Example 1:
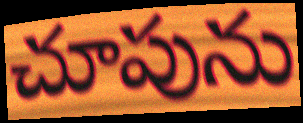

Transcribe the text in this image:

చూపును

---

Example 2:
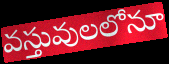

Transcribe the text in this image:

వస్తువులలోనూ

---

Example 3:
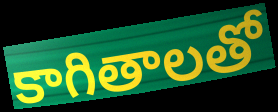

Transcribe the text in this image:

కాగితాలతో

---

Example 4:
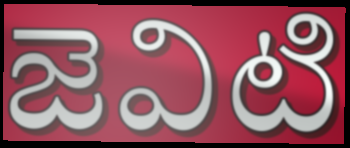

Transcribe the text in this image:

జెవిటి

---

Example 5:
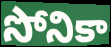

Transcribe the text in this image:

సోనికా